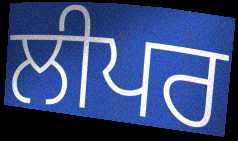
ਲੀਪਰ